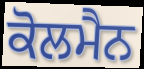
ਕੋਲਮੈਨ